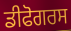
ਡੀਫੋਗਰਸ